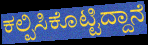
ಕಲ್ಪಿಸಿಕೊಟ್ಟಿದ್ದಾನೆ